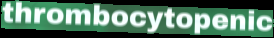
thrombocytopenic